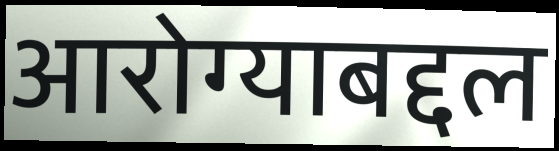
आरोग्याबद्दल